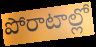
పోరాటాల్లో